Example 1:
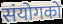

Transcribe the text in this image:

संयोगको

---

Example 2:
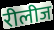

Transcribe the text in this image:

रीलीज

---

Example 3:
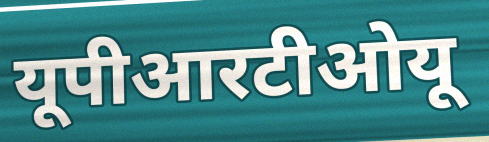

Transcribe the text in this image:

यूपीआरटीओयू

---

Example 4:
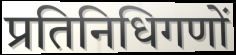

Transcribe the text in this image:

प्रतिनिधिगणों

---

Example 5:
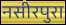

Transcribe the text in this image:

नसीरपुरा